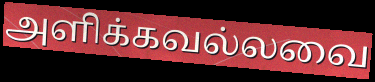
அளிக்கவல்லவை